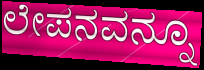
ಲೇಪನವನ್ನೂ